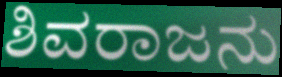
ಶಿವರಾಜನು